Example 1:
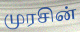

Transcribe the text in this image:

முரசின்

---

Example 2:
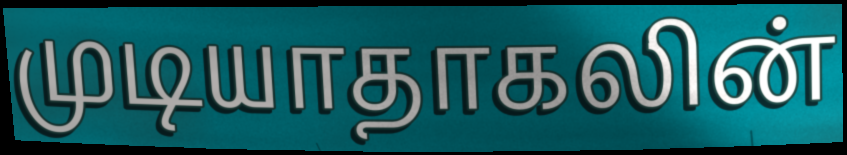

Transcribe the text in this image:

முடியாதாகலின்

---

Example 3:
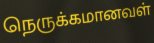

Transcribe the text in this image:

நெருக்கமானவள்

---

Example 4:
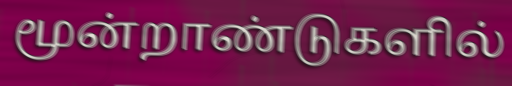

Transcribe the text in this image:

மூன்றாண்டுகளில்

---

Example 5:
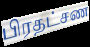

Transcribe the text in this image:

பிரதட்சண